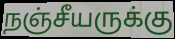
நஞ்சீயருக்கு